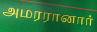
அமரரானார்